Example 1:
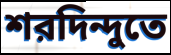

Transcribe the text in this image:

শরদিন্দুতে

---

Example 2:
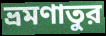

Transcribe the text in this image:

ভ্রমণাতুর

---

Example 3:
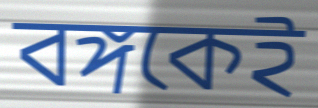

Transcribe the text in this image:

বঙ্গকেই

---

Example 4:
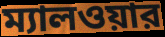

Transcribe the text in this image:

ম্যালওয়ার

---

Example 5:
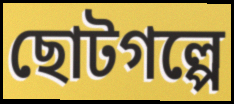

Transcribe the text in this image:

ছোটগল্পে